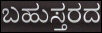
ಬಹುಸ್ತರದ